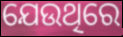
ଯେଉଥିରେ